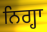
ਨਿਗ੍ਹਾ